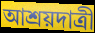
আশ্রয়দাত্রী